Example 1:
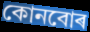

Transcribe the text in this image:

কোনবোৰ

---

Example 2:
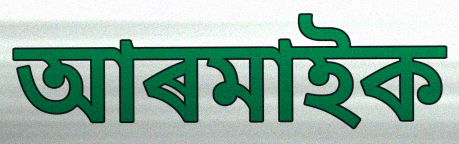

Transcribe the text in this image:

আৰমাইক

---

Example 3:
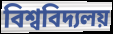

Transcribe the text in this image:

বিশ্ববিদ্যলয়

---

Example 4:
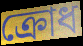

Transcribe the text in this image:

ক্ৰোধ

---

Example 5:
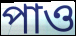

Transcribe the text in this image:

পাও